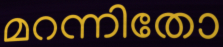
മറന്നിതോ